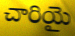
చారియై